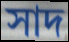
সাদ